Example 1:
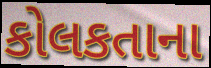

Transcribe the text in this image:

કોલકતાના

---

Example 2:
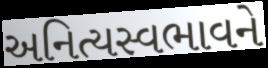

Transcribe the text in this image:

અનિત્યસ્વભાવને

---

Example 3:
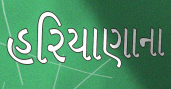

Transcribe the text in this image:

હરિયાણાના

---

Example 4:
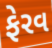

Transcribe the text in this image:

ફેરવ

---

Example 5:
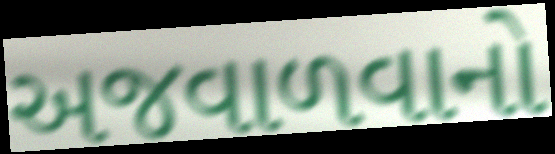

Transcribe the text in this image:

અજવાળવાનો